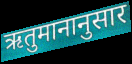
ऋतुमानानुसार